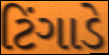
ટિંગાડે